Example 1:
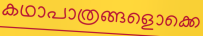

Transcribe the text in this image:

കഥാപാത്രങ്ങളൊക്കെ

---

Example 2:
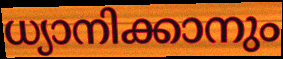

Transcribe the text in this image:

ധ്യാനിക്കാനും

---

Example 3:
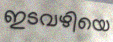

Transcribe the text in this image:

ഇടവഴിയെ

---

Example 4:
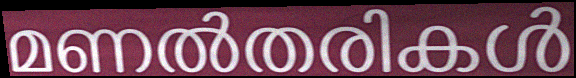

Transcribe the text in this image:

മണൽതരികൾ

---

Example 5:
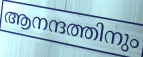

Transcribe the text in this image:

ആനന്ദത്തിനും